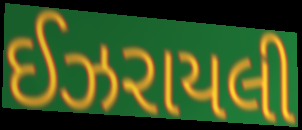
ઈઝરાયલી